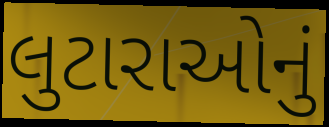
લુટારાઓનું